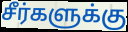
சீர்களுக்கு